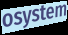
osystem